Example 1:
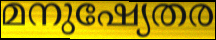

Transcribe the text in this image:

മനുഷ്യേതര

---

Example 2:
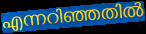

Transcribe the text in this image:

എന്നറിഞ്ഞതിൽ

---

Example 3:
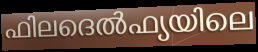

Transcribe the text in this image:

ഫിലദെൽഫ്യയിലെ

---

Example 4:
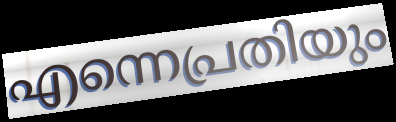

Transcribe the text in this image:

എന്നെപ്രതിയും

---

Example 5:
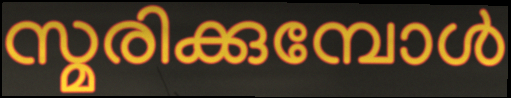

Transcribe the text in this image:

സ്മരിക്കുമ്പോൾ